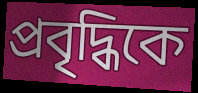
প্রবৃদ্ধিকে